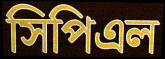
সিপিএল